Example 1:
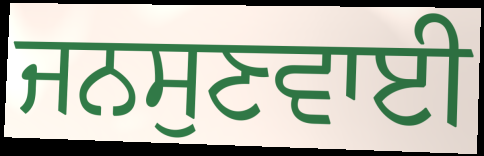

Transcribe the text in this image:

ਜਨਸੁਣਵਾਈ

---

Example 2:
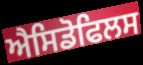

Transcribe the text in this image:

ਐਸਿਡੋਫਿਲਸ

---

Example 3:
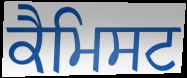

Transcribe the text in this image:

ਕੈਮਿਸਟ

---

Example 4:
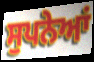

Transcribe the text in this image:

ਸੁਪਨੇਆਂ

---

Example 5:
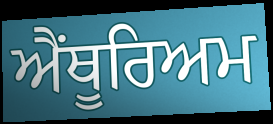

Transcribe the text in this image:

ਐਂਥੂਰਿਅਮ